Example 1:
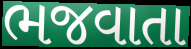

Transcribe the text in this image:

ભજવાતા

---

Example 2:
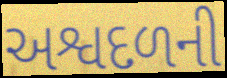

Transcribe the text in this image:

અશ્વદળની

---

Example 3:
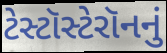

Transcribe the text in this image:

ટેસ્ટૉસ્ટેરૉનનું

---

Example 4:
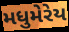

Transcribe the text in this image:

મધુમેરેય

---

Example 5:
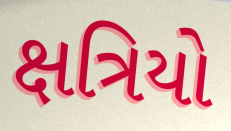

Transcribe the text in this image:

ક્ષત્રિયો